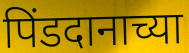
पिंडदानाच्या